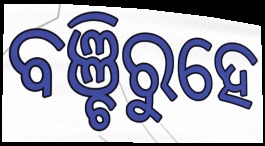
ବଞ୍ଚିରୁହେ